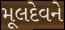
મૂલદેવને